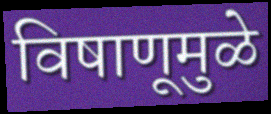
विषाणूमुळे